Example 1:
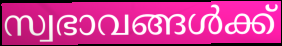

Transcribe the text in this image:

സ്വഭാവങ്ങൾക്ക്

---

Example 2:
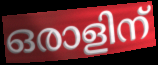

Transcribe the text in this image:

ഒരാളിന്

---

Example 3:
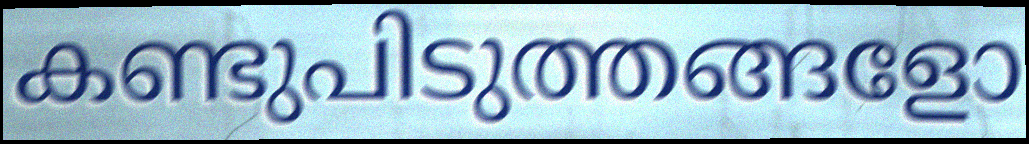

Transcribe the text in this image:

കണ്ടുപിടുത്തങ്ങളോ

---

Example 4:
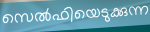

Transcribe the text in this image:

സെൽഫിയെടുക്കുന്ന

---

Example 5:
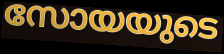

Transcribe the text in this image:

സോയയുടെ